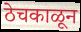
ठेचकाळून